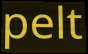
pelt